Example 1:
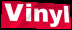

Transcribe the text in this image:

Vinyl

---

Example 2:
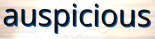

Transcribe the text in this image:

auspicious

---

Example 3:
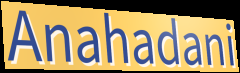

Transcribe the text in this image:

Anahadani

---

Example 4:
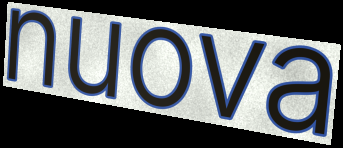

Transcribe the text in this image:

nuova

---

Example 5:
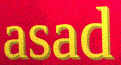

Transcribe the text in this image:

asad